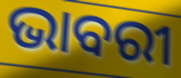
ଭାବରୀ